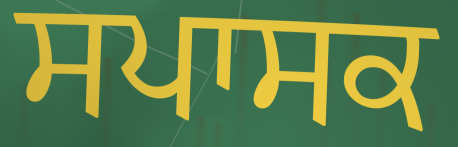
ਸਪਾਸਕ